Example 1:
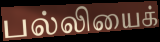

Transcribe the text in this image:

பல்லியைக்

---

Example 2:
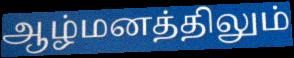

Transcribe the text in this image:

ஆழ்மனத்திலும்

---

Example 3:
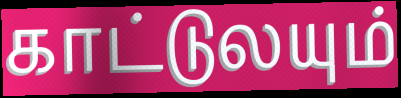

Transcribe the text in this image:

காட்டுலயும்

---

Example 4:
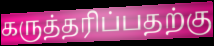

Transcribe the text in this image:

கருத்தரிப்பதற்கு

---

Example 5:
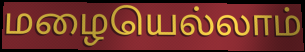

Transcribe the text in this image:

மழையெல்லாம்